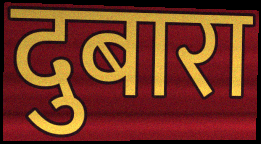
दुबारा